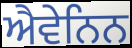
ਐਵੇਨਿਨ